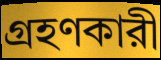
গ্রহণকারী